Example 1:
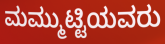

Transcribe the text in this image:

ಮಮ್ಮುಟ್ಟಿಯವರು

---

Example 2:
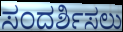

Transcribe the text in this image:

ಸಂದರ್ಶಿಸಲು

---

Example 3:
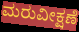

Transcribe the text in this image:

ಮರುವೀಕ್ಷಣೆ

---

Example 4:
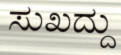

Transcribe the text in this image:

ಸುಖದ್ದು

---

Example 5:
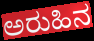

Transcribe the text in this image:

ಅರುಹಿನ